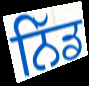
ਨਿੱਡ